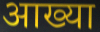
आख्या